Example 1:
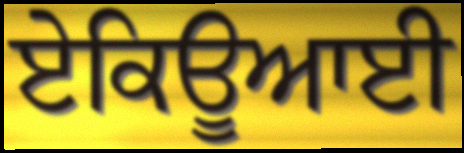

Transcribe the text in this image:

ਏਕਿਊਆਈ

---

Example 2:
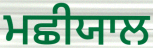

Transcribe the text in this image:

ਮਛੀਯਾਲ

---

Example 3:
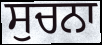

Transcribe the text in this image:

ਸੁਚਨਾ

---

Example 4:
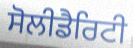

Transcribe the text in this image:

ਸੋਲੀਡੈਰਿਟੀ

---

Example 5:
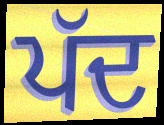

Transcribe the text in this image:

ਪੱਦ